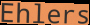
Ehlers